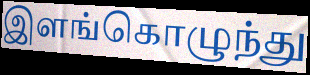
இளங்கொழுந்து